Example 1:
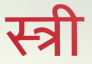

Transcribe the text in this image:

स्त्री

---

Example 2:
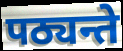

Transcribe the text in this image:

पठ्यन्ते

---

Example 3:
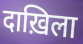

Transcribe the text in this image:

दाख़िला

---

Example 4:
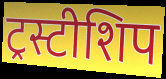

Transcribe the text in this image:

ट्रस्टीशिप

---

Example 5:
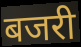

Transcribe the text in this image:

बजरी